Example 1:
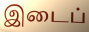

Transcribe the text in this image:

இடைப்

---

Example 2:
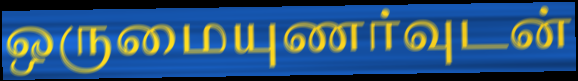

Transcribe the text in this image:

ஒருமையுணர்வுடன்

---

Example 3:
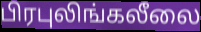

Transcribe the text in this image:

பிரபுலிங்கலீலை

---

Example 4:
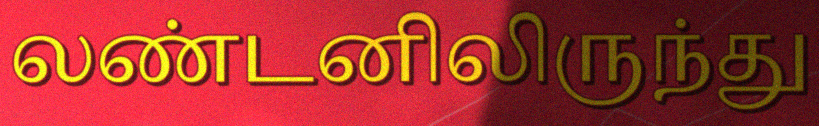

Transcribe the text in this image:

லண்டனிலிருந்து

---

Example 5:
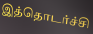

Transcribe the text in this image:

இத்தொடர்ச்சி